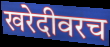
खरेदीवरच